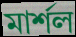
মার্শল